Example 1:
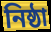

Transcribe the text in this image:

নিষ্ঠা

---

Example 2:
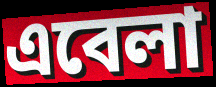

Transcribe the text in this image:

এবেলা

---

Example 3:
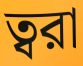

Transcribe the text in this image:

ত্বরা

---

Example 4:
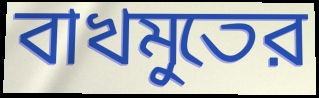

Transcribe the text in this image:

বাখমুতের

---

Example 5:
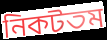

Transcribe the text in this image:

নিকটতম